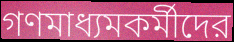
গণমাধ্যমকর্মীদের